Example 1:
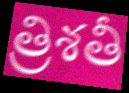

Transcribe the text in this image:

త్రిశతీ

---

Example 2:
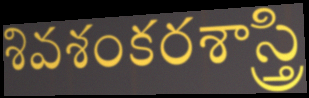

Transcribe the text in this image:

శివశంకరశాస్త్రి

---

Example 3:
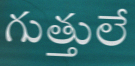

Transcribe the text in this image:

గుత్తులే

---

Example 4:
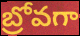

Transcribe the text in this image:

బ్రోవగా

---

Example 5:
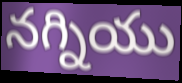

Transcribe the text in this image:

నగ్నియు